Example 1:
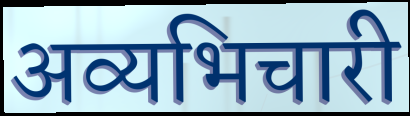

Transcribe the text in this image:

अव्यभिचारी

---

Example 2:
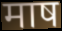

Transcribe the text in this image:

माष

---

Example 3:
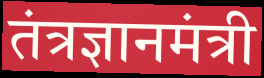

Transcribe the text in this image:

तंत्रज्ञानमंत्री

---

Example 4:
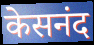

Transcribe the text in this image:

केसनंद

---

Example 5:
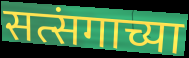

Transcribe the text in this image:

सत्संगाच्या